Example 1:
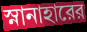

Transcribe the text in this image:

স্নানাহারের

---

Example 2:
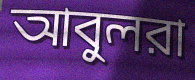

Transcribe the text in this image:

আবুলরা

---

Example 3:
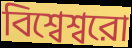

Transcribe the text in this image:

বিশ্বেশ্বরো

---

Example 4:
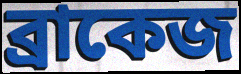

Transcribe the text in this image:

ব্রাকেজ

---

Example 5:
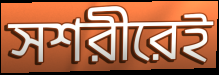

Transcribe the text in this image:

সশরীরেই